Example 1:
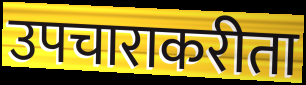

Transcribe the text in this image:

उपचाराकरीता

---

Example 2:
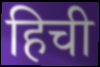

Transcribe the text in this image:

हिची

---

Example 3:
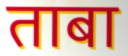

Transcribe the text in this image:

ताबा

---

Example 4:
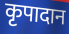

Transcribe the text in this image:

कृपादान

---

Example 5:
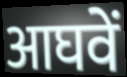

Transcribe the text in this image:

आघवें